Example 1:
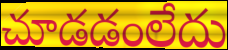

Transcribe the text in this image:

చూడడంలేదు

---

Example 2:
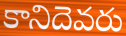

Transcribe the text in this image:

కానిదెవరు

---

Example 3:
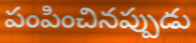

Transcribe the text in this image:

పంపించినప్పుడు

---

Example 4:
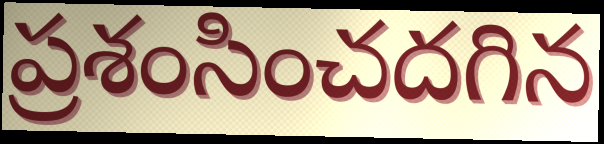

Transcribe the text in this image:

ప్రశంసించదగిన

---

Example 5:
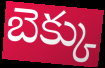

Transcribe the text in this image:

బెక్కు